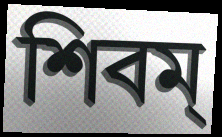
শিবম্